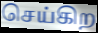
செய்கிற